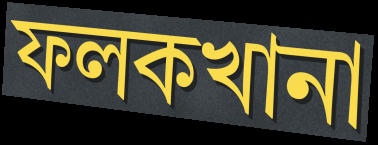
ফলকখানা